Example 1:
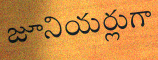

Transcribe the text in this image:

జూనియర్లుగా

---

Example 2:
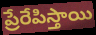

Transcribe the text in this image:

ప్రేరేపిస్తాయి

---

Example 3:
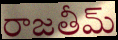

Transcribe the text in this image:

రాజతీమ్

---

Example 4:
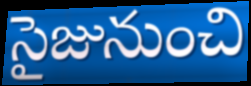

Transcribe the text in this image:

సైజునుంచి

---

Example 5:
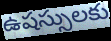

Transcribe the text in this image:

ఉషస్సులకు